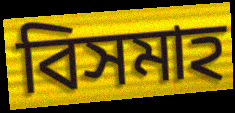
বিসমাহ